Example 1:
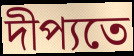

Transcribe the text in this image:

দীপ্যতে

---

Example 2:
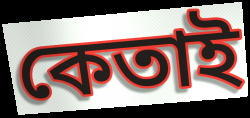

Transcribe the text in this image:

কেতাই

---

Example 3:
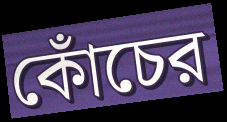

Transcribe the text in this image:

কোঁচের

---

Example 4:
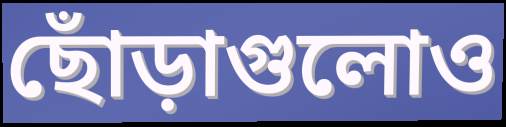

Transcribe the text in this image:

ছোঁড়াগুলোও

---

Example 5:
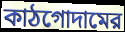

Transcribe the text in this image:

কাঠগোদামের